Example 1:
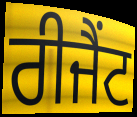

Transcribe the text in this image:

ਰੀਜੈਂਟ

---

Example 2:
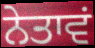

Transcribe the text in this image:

ਨੇਤਾਵਂ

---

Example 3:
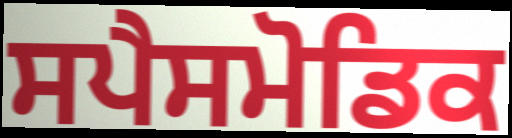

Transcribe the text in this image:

ਸਪੈਸਮੋਡਿਕ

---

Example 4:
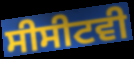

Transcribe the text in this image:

ਸੀਸੀਟਵੀ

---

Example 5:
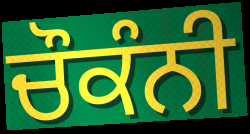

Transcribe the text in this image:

ਚੌਕੰਨੀ